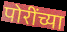
पोरींच्या